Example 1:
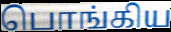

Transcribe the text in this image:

பொங்கிய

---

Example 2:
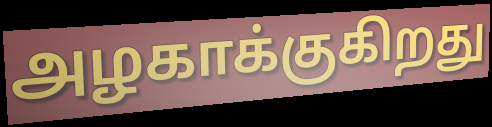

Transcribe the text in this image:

அழகாக்குகிறது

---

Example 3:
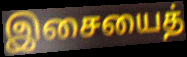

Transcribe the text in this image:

இசையைத்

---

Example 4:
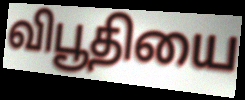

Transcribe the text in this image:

விபூதியை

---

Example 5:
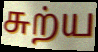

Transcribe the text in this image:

சுற்ய